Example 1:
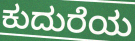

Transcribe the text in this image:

ಕುದುರೆಯ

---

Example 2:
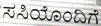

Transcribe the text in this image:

ಸಸಿಯೊಂದಿಗೆ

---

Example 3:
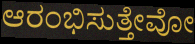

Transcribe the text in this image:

ಆರಂಭಿಸುತ್ತೇವೋ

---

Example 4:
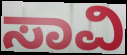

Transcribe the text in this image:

ಸಾವಿ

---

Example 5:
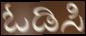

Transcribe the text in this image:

ಓಡಿಸಿ